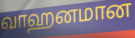
வாஹனமான